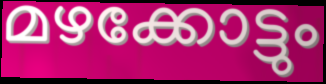
മഴക്കോട്ടും